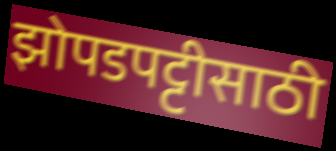
झोपडपट्टीसाठी